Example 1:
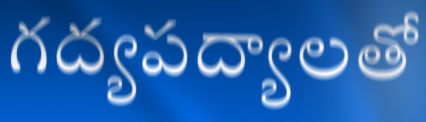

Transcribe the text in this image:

గద్యపద్యాలతో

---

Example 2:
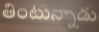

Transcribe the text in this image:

తింటున్నాడు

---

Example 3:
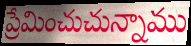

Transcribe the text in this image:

ప్రేమించుచున్నాము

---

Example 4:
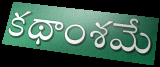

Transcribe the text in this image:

కథాంశమే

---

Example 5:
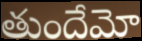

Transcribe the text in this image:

తుందేమో